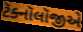
ટૅક્નૉલૉજીએ